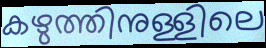
കഴുത്തിനുള്ളിലെ